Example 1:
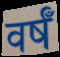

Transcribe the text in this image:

वर्षँ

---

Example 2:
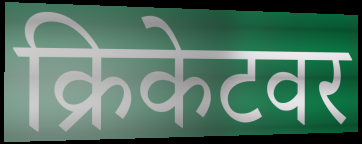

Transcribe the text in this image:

क्रिकेटवर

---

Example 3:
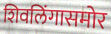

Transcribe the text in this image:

शिवलिंगासमोर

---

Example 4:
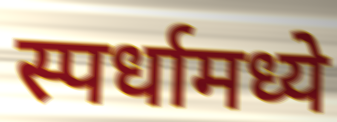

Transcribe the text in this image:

स्पर्धामध्ये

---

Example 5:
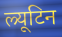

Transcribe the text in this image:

ल्यूटिन